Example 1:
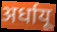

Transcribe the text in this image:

अर्धायू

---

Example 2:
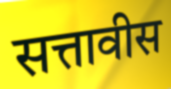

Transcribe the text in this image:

सत्तावीस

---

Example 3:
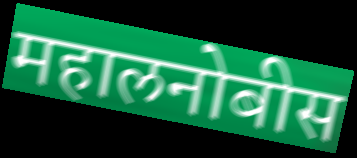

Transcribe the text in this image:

महालनोबीस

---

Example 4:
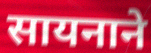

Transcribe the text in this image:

सायनाने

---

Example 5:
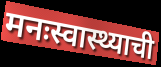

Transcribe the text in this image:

मनःस्वास्थ्याची